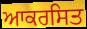
ਆਕਰਸਿਤ